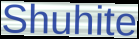
Shuhite